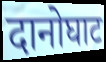
दानोघाट